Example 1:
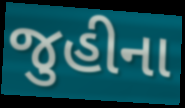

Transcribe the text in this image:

જુહીના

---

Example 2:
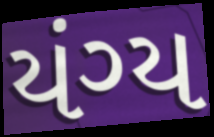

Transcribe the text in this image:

યંગ્ય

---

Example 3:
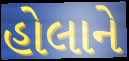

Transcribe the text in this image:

હોલાને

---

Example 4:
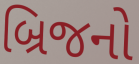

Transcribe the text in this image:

બ્રિજનો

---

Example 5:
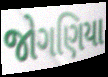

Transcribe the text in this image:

જોગણિયા